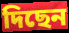
দিছেন